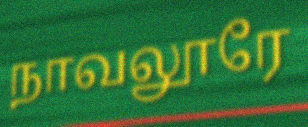
நாவலூரே